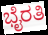
ಭೈರತಿ